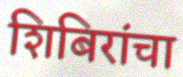
शिबिरांचा